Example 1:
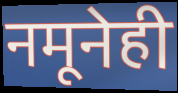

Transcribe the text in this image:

नमूनेही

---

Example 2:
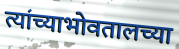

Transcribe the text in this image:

त्यांच्याभोवतालच्या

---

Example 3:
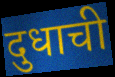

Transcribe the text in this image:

दुधाची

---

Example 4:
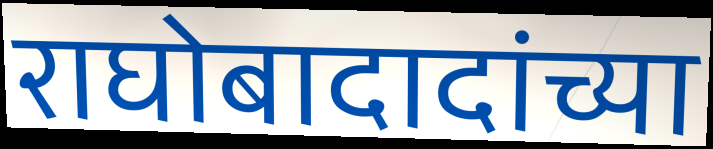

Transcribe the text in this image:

राघोबादादांच्या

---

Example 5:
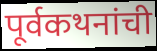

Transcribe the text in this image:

पूर्वकथनांची